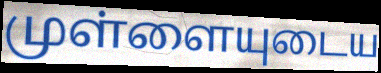
முள்ளையுடைய